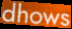
dhows